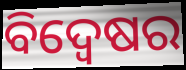
ବିଦ୍ୱେଷର